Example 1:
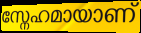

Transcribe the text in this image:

സ്നേഹമായാണ്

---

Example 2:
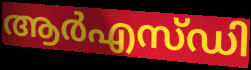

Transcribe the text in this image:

ആർഎസ്ഡി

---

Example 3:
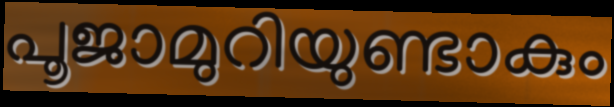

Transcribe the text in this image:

പൂജാമുറിയുണ്ടാകും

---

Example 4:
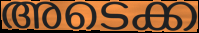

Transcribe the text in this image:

അടെക്ക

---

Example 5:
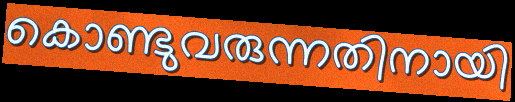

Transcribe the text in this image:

കൊണ്ടുവരുന്നതിനായി